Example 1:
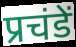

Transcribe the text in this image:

प्रचंडें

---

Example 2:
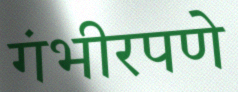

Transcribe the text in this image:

गंभीरपणे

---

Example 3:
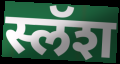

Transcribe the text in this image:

स्लॅश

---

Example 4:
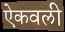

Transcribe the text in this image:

ऐकवली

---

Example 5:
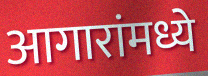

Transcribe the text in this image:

आगारांमध्ये